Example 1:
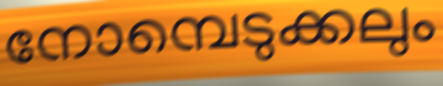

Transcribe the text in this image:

നോമ്പെടുക്കലും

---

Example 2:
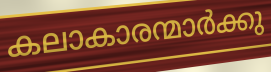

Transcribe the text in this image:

കലാകാരന്മാർക്കു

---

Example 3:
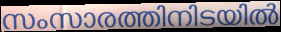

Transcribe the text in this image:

സംസാരത്തിനിടയിൽ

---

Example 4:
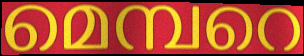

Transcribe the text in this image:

മെമ്പറെ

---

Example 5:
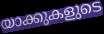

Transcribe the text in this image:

യാക്കുകളുടെ